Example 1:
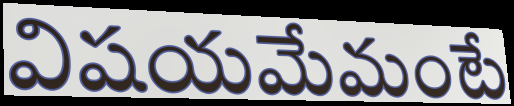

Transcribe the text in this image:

విషయమేమంటే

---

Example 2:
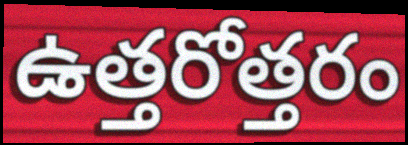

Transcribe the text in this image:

ఉత్తరోత్తరం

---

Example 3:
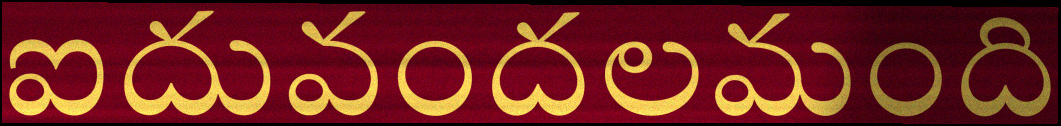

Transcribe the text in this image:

ఐదువందలమంది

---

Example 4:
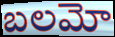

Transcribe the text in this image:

బలమో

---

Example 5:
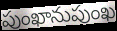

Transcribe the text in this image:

పుంఖానుపుంఖ